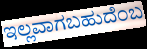
ಇಲ್ಲವಾಗಬಹುದೆಂಬ